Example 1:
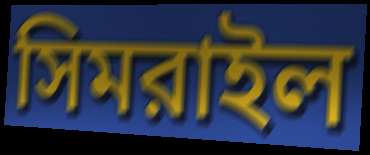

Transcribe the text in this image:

সিমরাইল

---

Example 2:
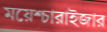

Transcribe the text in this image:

ময়েশ্চারাইজার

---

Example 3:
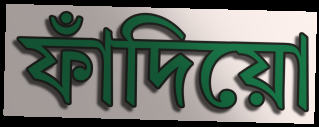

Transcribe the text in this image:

ফাঁদিয়ো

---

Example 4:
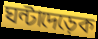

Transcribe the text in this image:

ঘন্টাদেড়েক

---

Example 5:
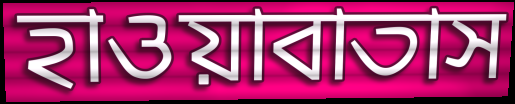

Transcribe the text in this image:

হাওয়াবাতাস